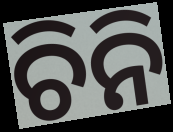
ଚିନି